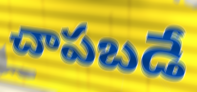
చాపబడే